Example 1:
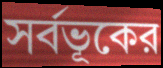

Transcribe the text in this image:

সর্বভূকের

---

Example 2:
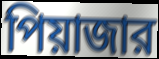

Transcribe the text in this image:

পিয়াজার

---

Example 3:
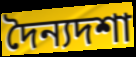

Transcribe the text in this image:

দৈন্যদশা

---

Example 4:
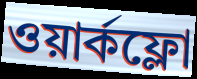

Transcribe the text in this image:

ওয়ার্কফ্লো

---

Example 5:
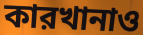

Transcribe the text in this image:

কারখানাও